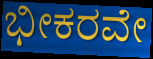
ಭೀಕರವೇ